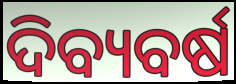
ଦିବ୍ୟବର୍ଷ